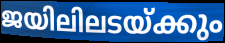
ജയിലിലടയ്ക്കും